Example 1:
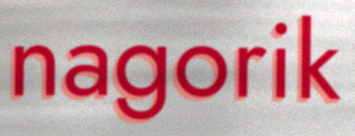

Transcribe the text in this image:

nagorik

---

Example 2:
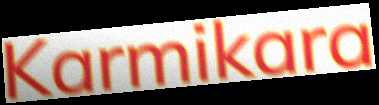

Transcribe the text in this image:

Karmikara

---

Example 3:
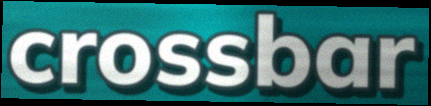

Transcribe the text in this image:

crossbar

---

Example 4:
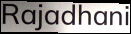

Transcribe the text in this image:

Rajadhani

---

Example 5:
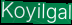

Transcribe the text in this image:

Koyilgal